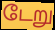
டேறு